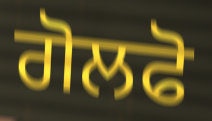
ਗੋਲਫੋ